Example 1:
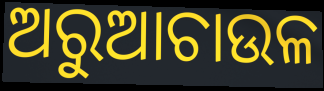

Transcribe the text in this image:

ଅରୁଆଚାଉଳ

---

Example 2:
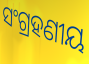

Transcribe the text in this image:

ସଂଗ୍ରହଣୀୟ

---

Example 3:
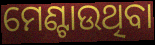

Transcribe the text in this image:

ମେଣ୍ଟାଉଥିବା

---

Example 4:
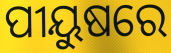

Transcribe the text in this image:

ପୀୟୁଷରେ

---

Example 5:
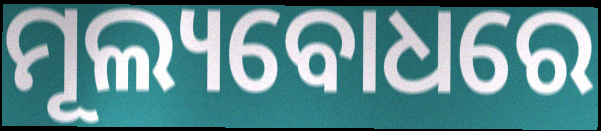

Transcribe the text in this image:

ମୂଲ୍ୟବୋଧରେ